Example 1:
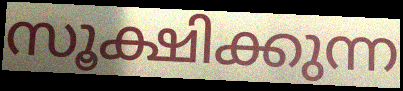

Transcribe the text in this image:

സൂക്ഷിക്കുന്ന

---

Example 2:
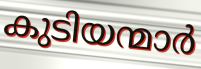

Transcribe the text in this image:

കുടിയന്മാർ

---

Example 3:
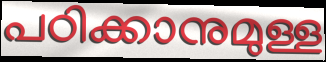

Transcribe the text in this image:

പഠിക്കാനുമുള്ള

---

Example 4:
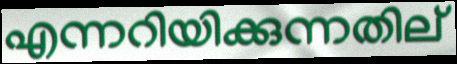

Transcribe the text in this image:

എന്നറിയിക്കുന്നതില്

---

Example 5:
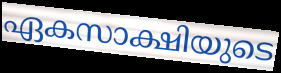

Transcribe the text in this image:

ഏകസാക്ഷിയുടെ